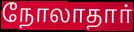
நோலாதார்